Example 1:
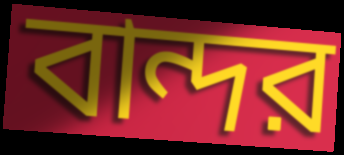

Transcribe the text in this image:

বান্দর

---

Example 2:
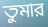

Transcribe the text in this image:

তুমার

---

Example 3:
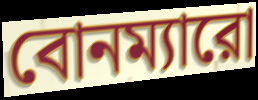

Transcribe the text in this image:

বোনম্যারো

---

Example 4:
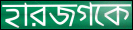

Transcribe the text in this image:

হারজগকে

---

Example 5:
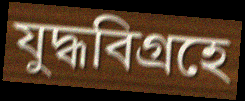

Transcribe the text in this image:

যুদ্ধবিগ্রহে